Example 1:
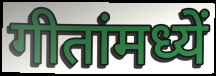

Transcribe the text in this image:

गीतांमध्यें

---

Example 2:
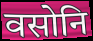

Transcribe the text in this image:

वसोनि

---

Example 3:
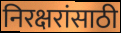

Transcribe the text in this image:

निरक्षरांसाठी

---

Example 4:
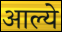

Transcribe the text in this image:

आल्ये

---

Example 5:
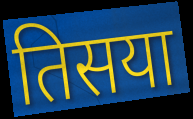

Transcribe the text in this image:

तिसया